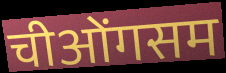
चीओंगसम